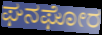
ಘನಘೋರ